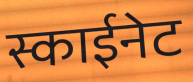
स्काईनेट